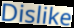
Dislike